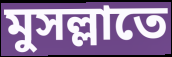
মুসল্লাতে